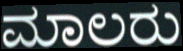
ಮಾಲರು